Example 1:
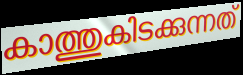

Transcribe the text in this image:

കാത്തുകിടക്കുന്നത്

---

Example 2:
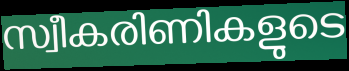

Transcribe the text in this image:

സ്വീകരിണികളുടെ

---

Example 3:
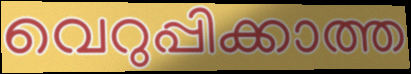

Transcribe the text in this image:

വെറുപ്പിക്കാത്ത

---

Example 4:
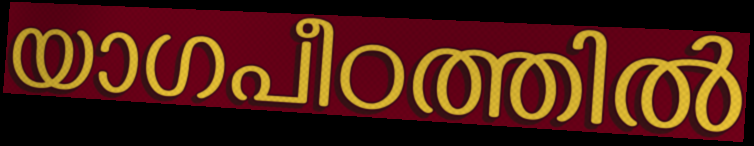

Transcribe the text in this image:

യാഗപീഠത്തിൽ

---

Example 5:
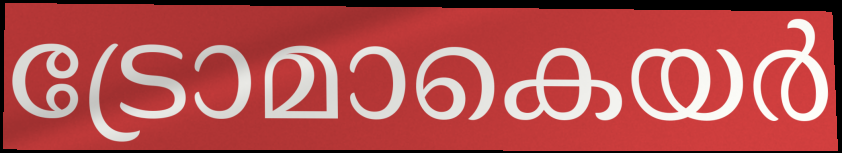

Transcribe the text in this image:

ട്രോമാകെയർ